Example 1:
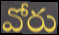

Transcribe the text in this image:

వోరు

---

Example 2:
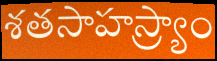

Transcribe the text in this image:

శతసాహస్ర్యాం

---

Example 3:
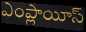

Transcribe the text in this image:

ఎంప్లాయీస్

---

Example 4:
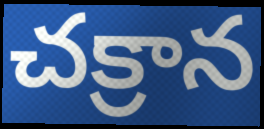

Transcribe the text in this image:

చక్రాన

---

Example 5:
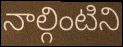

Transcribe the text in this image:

నాల్గింటిని